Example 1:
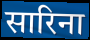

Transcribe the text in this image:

सारिना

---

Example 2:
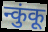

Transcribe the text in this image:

न्कुंकू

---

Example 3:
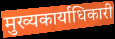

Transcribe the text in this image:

मुख्यकार्याधिकारी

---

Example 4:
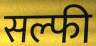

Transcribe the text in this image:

सल्फी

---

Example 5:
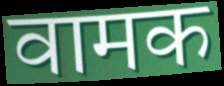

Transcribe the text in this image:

वामक